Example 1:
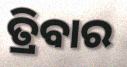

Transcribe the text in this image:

ତ୍ରିବାର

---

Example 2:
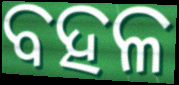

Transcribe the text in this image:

ବହଳ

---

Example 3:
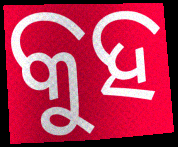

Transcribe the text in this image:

କୁହ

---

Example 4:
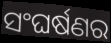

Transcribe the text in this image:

ସଂଘର୍ଷଣର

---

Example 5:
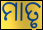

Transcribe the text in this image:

ମାତୃ